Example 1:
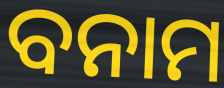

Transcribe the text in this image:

ବନାମ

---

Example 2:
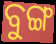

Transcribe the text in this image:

ବୁଙ୍ଗ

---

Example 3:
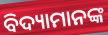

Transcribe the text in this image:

ବିଦ୍ୟାମାନଙ୍କ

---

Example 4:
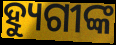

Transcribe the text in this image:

ହ୍ୟୁଗୀଙ୍କ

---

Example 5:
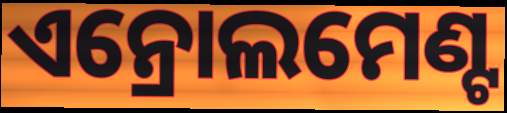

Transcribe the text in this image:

ଏନ୍ରୋଲମେଣ୍ଟ